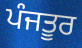
ਪੰਜਤੂਰ